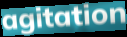
agitation